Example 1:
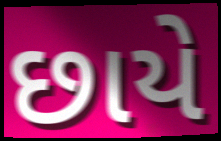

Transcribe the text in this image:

છાયે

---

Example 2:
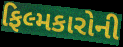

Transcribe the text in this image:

ફિલ્મકારોની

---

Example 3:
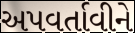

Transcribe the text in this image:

અપવર્તાવીને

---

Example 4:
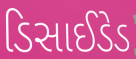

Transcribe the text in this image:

ડિસાઈડેડ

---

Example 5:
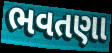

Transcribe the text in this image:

ભવતણા